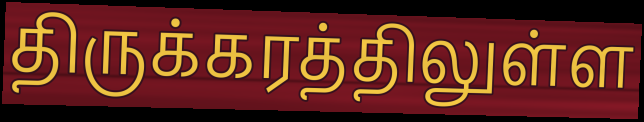
திருக்கரத்திலுள்ள